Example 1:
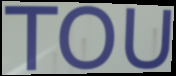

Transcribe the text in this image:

TOU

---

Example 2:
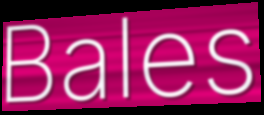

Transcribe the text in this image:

Bales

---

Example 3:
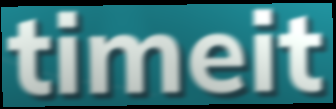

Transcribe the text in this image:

timeit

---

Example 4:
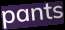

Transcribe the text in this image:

pants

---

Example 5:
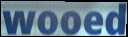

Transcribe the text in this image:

wooed